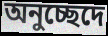
অনুচ্ছেদে